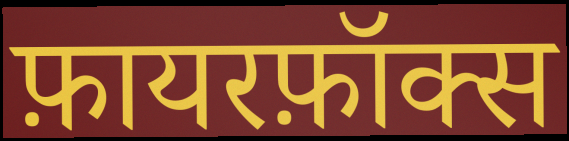
फ़ायरफ़ॉक्स